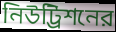
নিউট্রিশনের